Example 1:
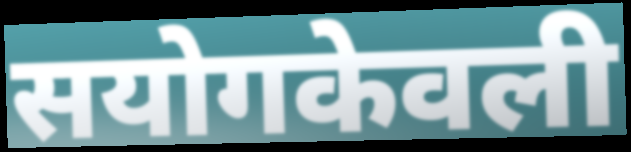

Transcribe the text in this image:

सयोगकेवली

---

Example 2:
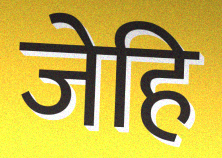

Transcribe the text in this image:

जेहि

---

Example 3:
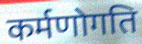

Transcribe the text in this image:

कर्मणोगति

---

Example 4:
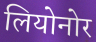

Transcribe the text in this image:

लियोनोर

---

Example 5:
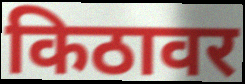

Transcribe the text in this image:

किठावर